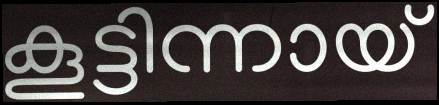
കൂട്ടിന്നായ്